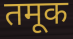
तमूक